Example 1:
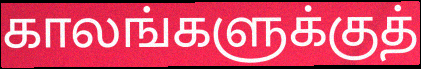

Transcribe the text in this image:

காலங்களுக்குத்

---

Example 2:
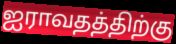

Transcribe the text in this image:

ஐராவதத்திற்கு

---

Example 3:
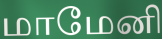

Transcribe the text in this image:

மாமேனி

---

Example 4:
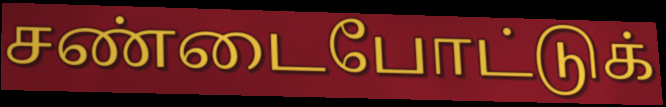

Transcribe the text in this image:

சண்டைபோட்டுக்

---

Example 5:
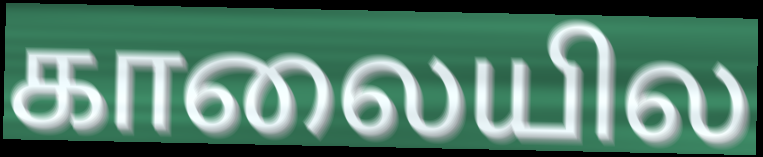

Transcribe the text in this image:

காலையில